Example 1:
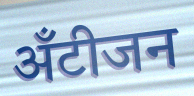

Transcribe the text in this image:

अँटीजन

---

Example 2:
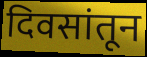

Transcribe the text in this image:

दिवसांतून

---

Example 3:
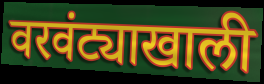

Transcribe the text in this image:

वरवंट्याखाली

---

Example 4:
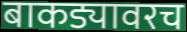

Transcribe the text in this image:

बाकड्यावरच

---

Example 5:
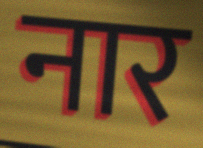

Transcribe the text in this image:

नार